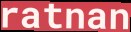
ratnan